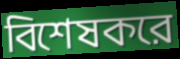
বিশেষকরে